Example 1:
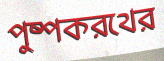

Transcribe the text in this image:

পুষ্পকরথের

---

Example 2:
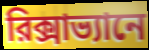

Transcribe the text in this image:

রিক্সাভ্যানে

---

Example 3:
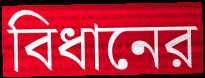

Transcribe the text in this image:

বিধানের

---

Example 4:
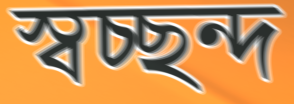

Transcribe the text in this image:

স্বচ্ছন্দ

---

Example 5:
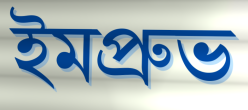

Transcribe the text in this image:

ইমপ্রুভ